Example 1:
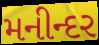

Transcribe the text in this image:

મનીન્દર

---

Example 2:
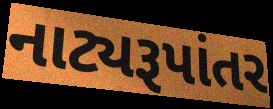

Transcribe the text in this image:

નાટ્યરૂપાંતર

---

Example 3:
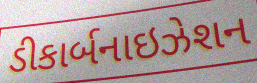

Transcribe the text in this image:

ડીકાર્બનાઇઝેશન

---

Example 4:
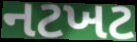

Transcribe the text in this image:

નટખટ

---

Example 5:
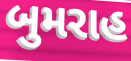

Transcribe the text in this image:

બુમરાહ